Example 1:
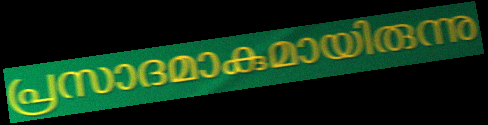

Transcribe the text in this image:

പ്രസാദമാകുമായിരുന്നു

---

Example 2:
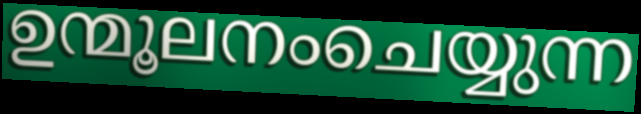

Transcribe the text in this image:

ഉന്മൂലനംചെയ്യുന്ന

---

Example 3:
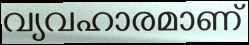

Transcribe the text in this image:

വ്യവഹാരമാണ്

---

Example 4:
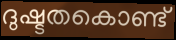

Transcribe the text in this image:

ദുഷ്ടതകൊണ്ട്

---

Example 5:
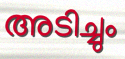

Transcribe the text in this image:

അടിച്ചും